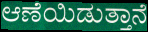
ಆಣೆಯಿಡುತ್ತಾನೆ